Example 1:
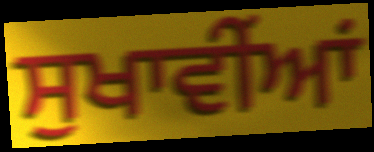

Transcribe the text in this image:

ਸੁਖਾਵੀਂਆਂ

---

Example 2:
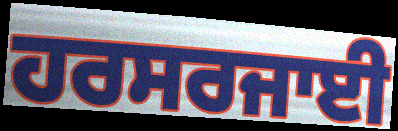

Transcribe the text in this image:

ਹਰਸਰਜਾਈ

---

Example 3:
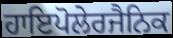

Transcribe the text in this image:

ਹਾਇਪੋਲੇਰਜੈਨਿਕ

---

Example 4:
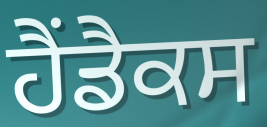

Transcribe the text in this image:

ਹੈਂਡੈਕਸ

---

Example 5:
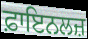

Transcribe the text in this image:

ਫ਼ਾਇਨਲਜ਼